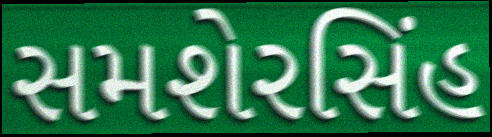
સમશેરસિંહ